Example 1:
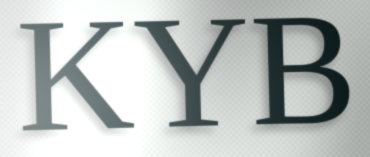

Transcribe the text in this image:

KYB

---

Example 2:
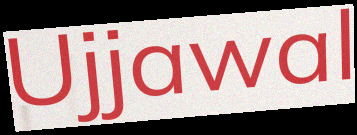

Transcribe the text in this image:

Ujjawal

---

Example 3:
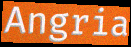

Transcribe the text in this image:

Angria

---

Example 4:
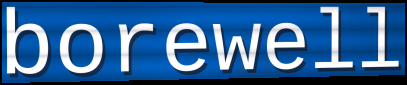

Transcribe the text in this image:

borewell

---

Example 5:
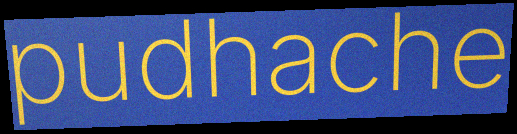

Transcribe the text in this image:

pudhache